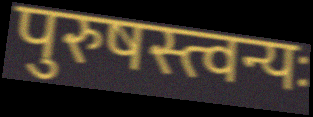
पुरुषस्त्वन्यः